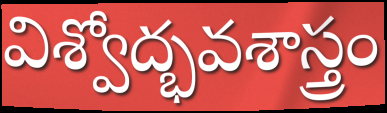
విశ్వోద్భవశాస్త్రం